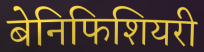
बेनिफिशियरी